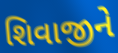
શિવાજીને